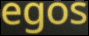
egos